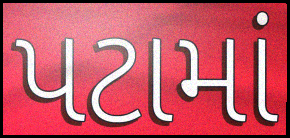
પટામાં